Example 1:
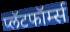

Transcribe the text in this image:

प्लॅटफॉर्म्स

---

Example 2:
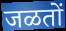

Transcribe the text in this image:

जळतों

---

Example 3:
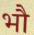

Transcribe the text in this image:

भौ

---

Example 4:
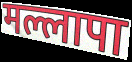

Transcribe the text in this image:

मल्लापा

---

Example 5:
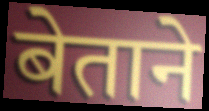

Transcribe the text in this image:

बेताने